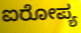
ಐರೋಪ್ಯ